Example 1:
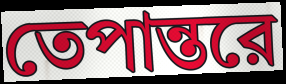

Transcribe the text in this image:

তেপান্তরে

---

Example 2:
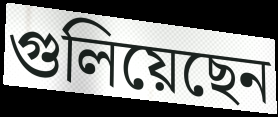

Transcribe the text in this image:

গুলিয়েছেন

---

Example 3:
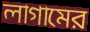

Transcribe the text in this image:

লাগামের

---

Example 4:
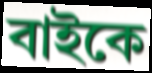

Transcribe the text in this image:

বাইকে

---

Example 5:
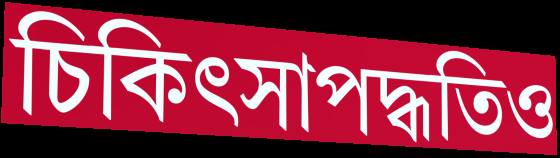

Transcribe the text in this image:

চিকিৎসাপদ্ধতিও